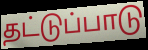
தட்டுப்பாடு